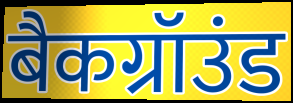
बैकग्रॉउंड